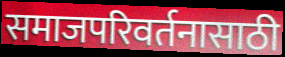
समाजपरिवर्तनासाठी